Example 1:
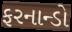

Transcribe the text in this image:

ફરનાન્ડો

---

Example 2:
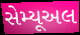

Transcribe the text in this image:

સેમ્યૂઅલ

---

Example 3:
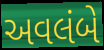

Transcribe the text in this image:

અવલંબે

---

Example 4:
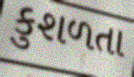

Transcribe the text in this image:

કુશળતા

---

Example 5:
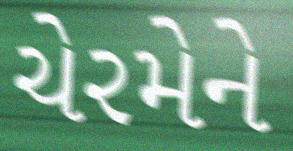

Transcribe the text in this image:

ચેરમેને